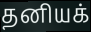
தனியக்